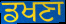
ਡਖਣਾ